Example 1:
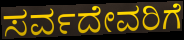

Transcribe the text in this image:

ಸರ್ವದೇವರಿಗೆ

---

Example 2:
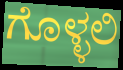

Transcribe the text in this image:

ಗೊಳ್ಳಲಿ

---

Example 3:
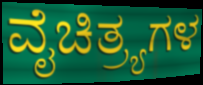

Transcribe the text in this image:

ವೈಚಿತ್ರ್ಯಗಳ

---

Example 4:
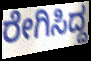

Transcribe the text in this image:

ರೇಗಿಸಿದ್ದ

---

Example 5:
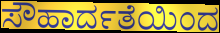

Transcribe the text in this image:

ಸೌಹಾರ್ದತೆಯಿಂದ